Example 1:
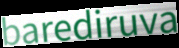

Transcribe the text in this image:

barediruva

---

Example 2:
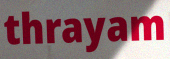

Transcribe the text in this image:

thrayam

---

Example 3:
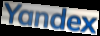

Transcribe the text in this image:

Yandex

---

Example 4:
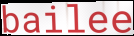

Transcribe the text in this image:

bailee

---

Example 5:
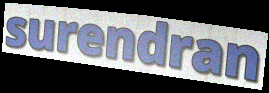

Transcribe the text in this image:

surendran